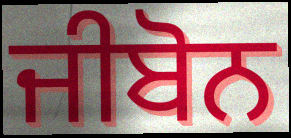
ਜੀਬੋਨ